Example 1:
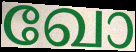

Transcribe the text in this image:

ഖോ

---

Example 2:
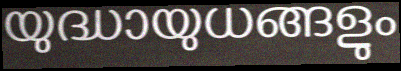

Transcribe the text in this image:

യുദ്ധായുധങ്ങളും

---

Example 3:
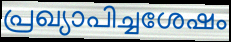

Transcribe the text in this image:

പ്രഖ്യാപിച്ചശേഷം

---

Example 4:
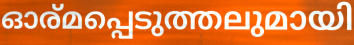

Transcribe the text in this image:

ഓര്മപ്പെടുത്തലുമായി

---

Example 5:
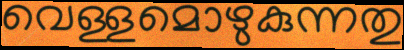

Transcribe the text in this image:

വെള്ളമൊഴുകുന്നതു